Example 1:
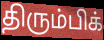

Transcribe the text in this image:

திரும்பிக்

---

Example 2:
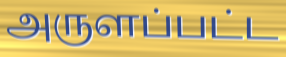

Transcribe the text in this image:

அருளப்பட்ட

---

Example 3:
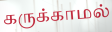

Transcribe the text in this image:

கருக்காமல்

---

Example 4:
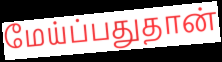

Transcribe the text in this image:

மேய்ப்பதுதான்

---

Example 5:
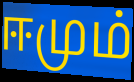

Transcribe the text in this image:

ஈமும்